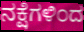
ನಕ್ಷೆಗಳಿಂದ